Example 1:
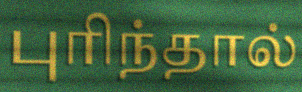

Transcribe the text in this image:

புரிந்தால்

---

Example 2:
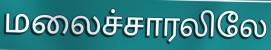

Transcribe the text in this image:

மலைச்சாரலிலே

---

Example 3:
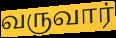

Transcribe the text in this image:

வருவார்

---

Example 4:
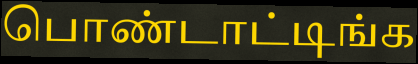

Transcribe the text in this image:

பொண்டாட்டிங்க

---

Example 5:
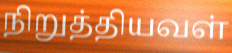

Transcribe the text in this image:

நிறுத்தியவள்